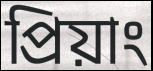
প্রিয়াং